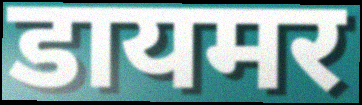
डायमर